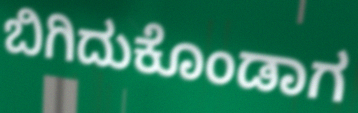
ಬಿಗಿದುಕೊಂಡಾಗ